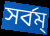
সর্বম্